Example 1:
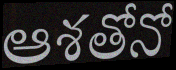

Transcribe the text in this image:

ఆశతోనో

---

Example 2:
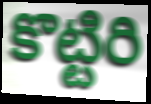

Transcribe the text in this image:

కొట్టిరి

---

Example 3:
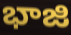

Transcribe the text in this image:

భాజి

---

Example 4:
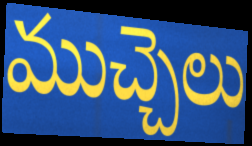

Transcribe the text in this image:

ముచ్చెలు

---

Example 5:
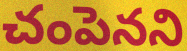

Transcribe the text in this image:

చంపెనని